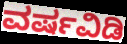
ವರ್ಷವಿಡಿ